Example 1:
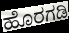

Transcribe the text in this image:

ಹೊರಗಡಿ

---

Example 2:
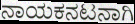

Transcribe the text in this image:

ನಾಯಕನಟನಾಗಿ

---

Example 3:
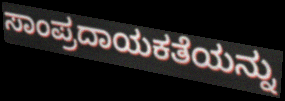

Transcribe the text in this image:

ಸಾಂಪ್ರದಾಯಕತೆಯನ್ನು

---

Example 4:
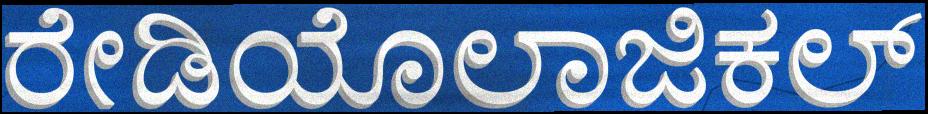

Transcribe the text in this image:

ರೇಡಿಯೊಲಾಜಿಕಲ್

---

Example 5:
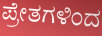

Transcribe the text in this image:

ಪ್ರೇತಗಳಿಂದ